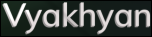
Vyakhyan